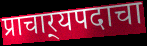
प्राचार्यपदाचा